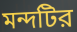
মন্দটির